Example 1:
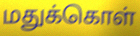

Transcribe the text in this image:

மதுக்கொள்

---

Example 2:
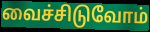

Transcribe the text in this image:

வைச்சிடுவோம்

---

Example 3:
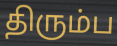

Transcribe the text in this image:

திரும்ப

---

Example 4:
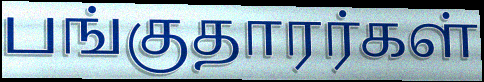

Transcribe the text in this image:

பங்குதாரர்கள்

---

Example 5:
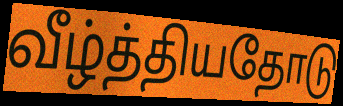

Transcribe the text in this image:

வீழ்த்தியதோடு